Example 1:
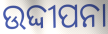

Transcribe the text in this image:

ଉଦ୍ଦୀପନା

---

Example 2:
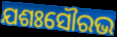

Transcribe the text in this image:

ଯଶଃସୌରଭ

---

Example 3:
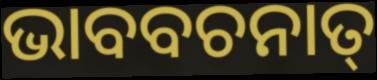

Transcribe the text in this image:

ଭାବବଚନାତ୍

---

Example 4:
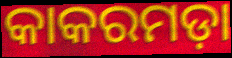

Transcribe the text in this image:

କାକରମଡ଼ା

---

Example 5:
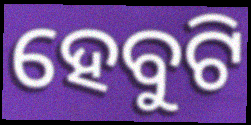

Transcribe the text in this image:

ହେବୁଟି